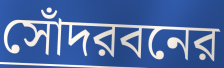
সোঁদরবনের